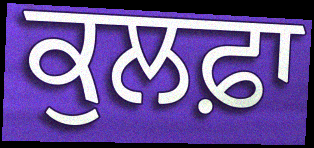
ਕੁਲਫ਼ਾ